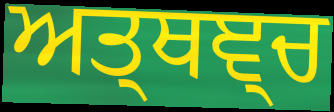
ਅਤ੍ਥਞ੍ਚ